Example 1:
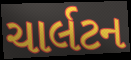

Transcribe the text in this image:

ચાર્લટન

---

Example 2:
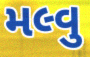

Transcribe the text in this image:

મલ્વુ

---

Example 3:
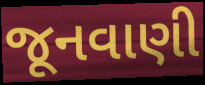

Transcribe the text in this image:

જૂનવાણી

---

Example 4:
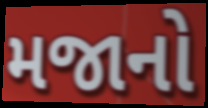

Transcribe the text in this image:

મજાનો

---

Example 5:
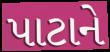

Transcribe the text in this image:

પાટાને